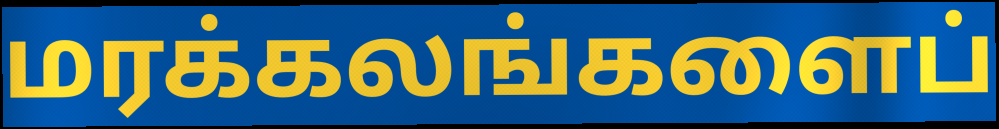
மரக்கலங்களைப்